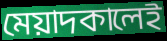
মেয়াদকালেই